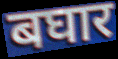
बघार